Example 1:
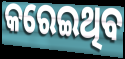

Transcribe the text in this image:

କରେଇଥିବ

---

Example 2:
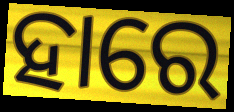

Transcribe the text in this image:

ହାରେ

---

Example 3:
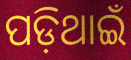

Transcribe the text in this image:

ପଡ଼ିଥାଇଁ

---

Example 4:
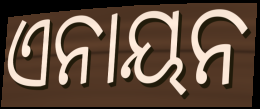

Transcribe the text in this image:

ଏନାୟନ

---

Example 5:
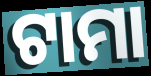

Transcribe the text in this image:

ଟାମା